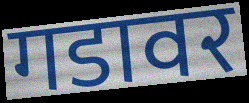
गडावर